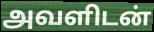
அவளிடன்